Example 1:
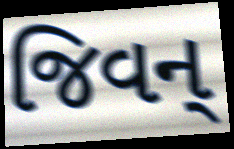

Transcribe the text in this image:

જિવન્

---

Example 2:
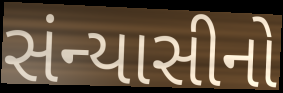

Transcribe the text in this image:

સંન્યાસીનો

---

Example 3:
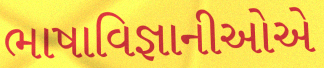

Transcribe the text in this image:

ભાષાવિજ્ઞાનીઓએ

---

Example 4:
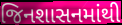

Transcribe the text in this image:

જિનશાસનમાંથી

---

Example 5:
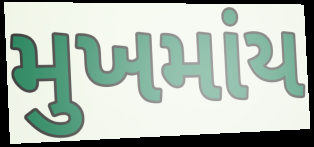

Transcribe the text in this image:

મુખમાંય